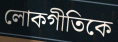
লোকগীতিকে